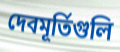
দেবমূর্তিগুলি